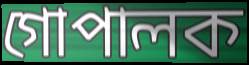
গোপালক